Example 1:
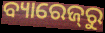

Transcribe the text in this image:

ବ୍ୟାରେଜ୍‌ରୁ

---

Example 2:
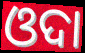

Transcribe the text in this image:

ଓଦା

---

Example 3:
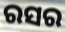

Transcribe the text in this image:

ରସର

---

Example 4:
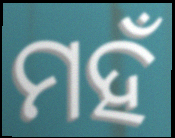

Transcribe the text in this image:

ମହଁ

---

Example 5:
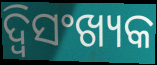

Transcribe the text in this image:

ଦ୍ୱିସଂଖ୍ୟକ